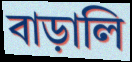
বাড়ালি